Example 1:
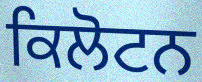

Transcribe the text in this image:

ਕਿਲੋਟਨ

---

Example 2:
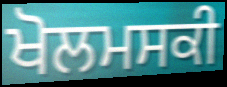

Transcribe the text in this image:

ਖੋਲਮਸਕੀ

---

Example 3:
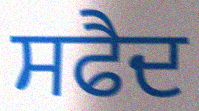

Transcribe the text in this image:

ਸਫੈਦ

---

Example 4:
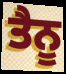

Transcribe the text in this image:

ਤੈਨੂ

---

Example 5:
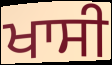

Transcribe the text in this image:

ਖਾਸੀ